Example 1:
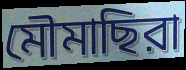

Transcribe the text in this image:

মৌমাছিরা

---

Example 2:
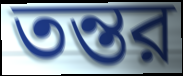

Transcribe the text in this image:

তন্তর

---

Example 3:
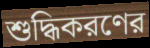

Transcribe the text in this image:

শুদ্ধিকরণের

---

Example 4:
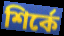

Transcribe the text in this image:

শির্কে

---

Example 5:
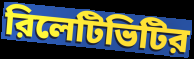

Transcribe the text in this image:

রিলেটিভিটির